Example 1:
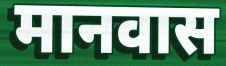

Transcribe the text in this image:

मानवास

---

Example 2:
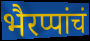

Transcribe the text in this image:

भैरप्पांचं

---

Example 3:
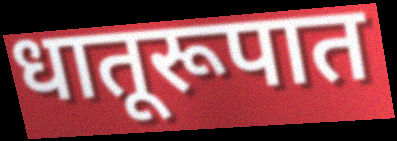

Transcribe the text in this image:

धातूरूपात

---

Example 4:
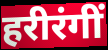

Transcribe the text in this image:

हरीरंगीं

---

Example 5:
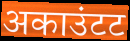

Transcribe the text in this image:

अकाउंटट